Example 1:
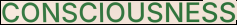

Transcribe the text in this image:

CONSCIOUSNESS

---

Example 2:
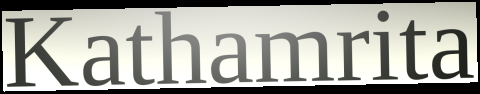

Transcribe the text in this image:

Kathamrita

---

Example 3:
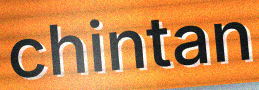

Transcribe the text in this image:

chintan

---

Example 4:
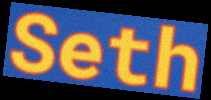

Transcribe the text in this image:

Seth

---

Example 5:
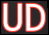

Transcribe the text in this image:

UD